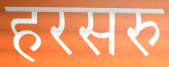
हरसरु